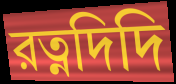
রত্নদিদি